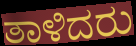
ತಾಳಿದರು